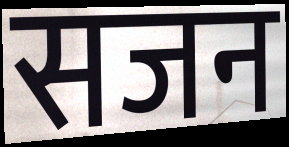
सजन